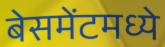
बेसमेंटमध्ये